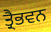
ਤ੍ਰੈਭਵਨ